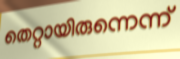
തെറ്റായിരുന്നെന്ന്